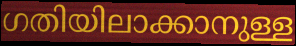
ഗതിയിലാക്കാനുള്ള